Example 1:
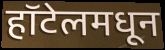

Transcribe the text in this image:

हॉटेलमधून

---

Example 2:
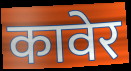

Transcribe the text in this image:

कावेर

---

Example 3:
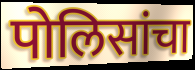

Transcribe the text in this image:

पोलिसांचा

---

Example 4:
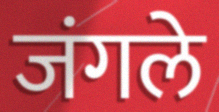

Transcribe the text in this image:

जंगले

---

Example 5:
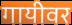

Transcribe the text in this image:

गायीवर